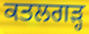
ਕਤਲਗੜ੍ਹ